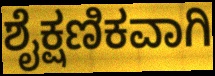
ಶೈಕ್ಷಣಿಕವಾಗಿ